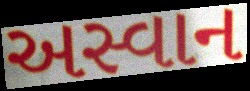
અસ્વાન